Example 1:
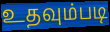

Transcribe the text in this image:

உதவும்படி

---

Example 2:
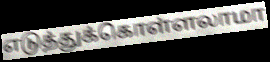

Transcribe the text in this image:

எடுத்துக்கொள்ளலாமா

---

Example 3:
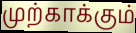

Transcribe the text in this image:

முற்காக்கும்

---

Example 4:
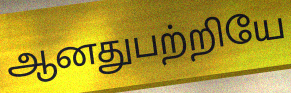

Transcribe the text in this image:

ஆனதுபற்றியே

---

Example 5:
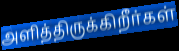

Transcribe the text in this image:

அளித்திருக்கிறீர்கள்